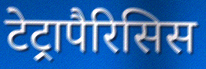
टेट्रापैरिसिस